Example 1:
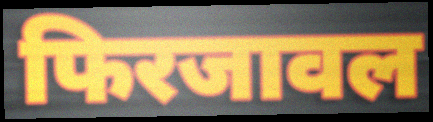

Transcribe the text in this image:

फिरजावल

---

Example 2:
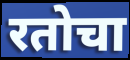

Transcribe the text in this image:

रतोचा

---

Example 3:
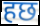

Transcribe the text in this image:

हछ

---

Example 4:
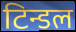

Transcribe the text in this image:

टिन्डल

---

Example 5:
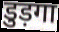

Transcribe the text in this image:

डुड़गा